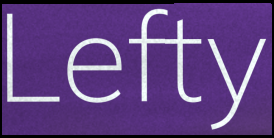
Lefty